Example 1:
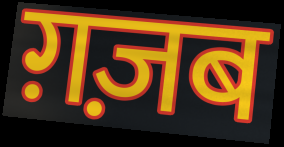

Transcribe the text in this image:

ग़ज़ब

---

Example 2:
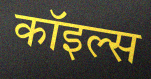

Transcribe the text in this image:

कॉइल्स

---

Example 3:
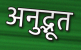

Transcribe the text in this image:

अनुद्भूत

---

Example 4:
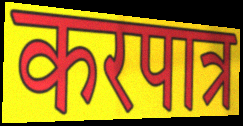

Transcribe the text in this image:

करपात्र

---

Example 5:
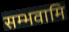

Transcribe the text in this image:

सम्भवामि